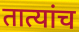
तात्यांच